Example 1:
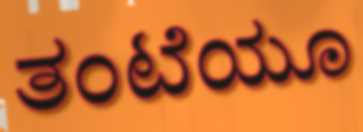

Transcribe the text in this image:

ತಂಟೆಯೂ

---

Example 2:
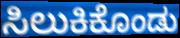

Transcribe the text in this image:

ಸಿಲುಕಿಕೊಂಡು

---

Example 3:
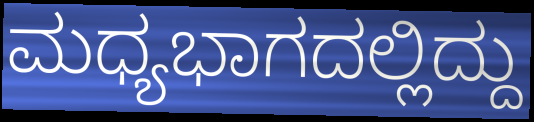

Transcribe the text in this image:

ಮಧ್ಯಭಾಗದಲ್ಲಿದ್ದು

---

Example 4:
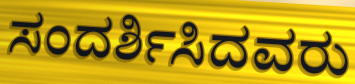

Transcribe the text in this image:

ಸಂದರ್ಶಿಸಿದವರು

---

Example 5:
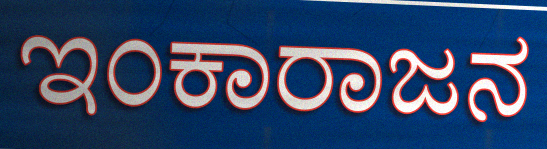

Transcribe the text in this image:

ಇಂಕಾರಾಜನ